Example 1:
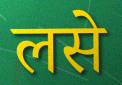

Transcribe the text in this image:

लसे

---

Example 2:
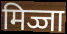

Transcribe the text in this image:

मिज्जा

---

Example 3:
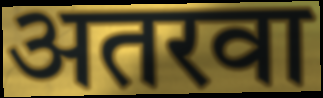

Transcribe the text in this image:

अतरवा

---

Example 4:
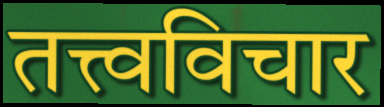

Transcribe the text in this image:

तत्त्वविचार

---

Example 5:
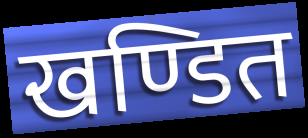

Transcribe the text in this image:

खण्डित